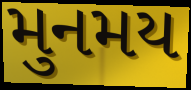
મુનમય